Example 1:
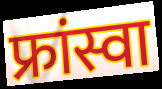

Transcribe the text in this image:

फ्रांस्वा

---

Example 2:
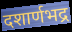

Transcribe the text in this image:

दशार्णभद्र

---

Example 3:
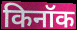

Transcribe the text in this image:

किनॉक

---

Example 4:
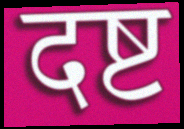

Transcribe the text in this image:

दष्ट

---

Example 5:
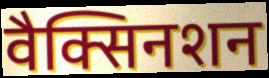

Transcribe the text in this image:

वैक्सिनशन